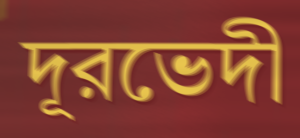
দূরভেদী